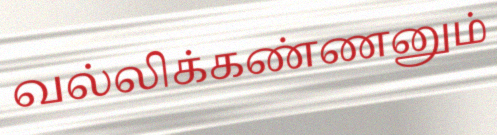
வல்லிக்கண்ணனும்